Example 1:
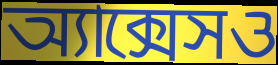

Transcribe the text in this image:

অ্যাক্সেসও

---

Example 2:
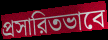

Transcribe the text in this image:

প্রসারিতভাবে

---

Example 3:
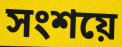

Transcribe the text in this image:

সংশয়ে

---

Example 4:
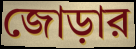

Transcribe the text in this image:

জোড়ার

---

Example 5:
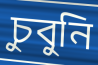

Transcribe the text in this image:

চুবুনি